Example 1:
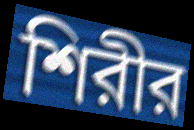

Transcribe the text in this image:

শিরীর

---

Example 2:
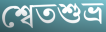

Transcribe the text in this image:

শ্বেতশুভ্র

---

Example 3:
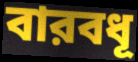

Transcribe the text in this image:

বারবধূ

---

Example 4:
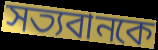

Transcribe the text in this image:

সত্যবানকে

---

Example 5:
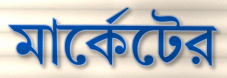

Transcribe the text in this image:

মার্কেটের